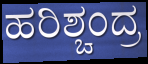
ಹರಿಶ್ಚಂದ್ರ